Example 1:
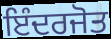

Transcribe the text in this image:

ਇੰਦਰਜੋਤ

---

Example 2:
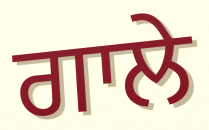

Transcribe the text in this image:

ਗਾਲੇ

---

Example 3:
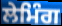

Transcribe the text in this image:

ਲੇਮਿੰਗ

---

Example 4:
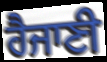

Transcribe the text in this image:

ਹੈਜਾਣੀ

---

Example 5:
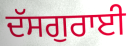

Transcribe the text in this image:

ਦੱਸਗੁਰਾਈ